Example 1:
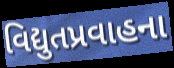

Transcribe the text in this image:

વિદ્યુતપ્રવાહના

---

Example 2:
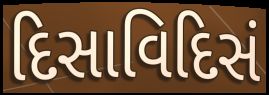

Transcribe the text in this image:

દિસાવિદિસં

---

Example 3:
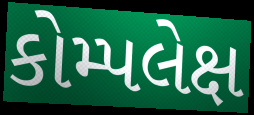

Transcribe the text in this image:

કોમ્પલેક્ષ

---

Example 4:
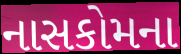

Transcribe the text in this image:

નાસકોમના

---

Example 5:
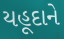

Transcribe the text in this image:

યહૂદાને